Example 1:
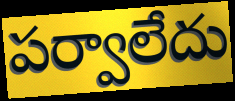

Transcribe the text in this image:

పర్వాలేదు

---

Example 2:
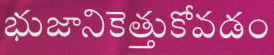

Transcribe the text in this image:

భుజానికెత్తుకోవడం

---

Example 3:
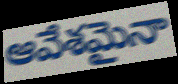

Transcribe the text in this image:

ఆవేశమైనా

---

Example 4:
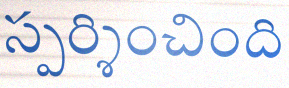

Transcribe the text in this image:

స్పర్శించింది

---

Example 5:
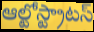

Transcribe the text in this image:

ఆల్టోస్ట్రాటస్